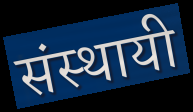
संस्थायी